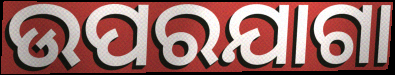
ଉପରଯାଗା